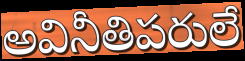
అవినీతిపరులే